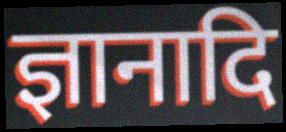
ज्ञानादि